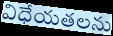
విధేయతలను